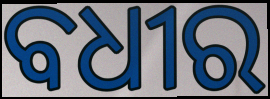
ବଧୀର